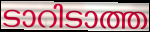
ടാറിടാത്ത